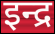
इन्द्र